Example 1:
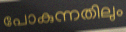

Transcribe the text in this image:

പോകുന്നതിലും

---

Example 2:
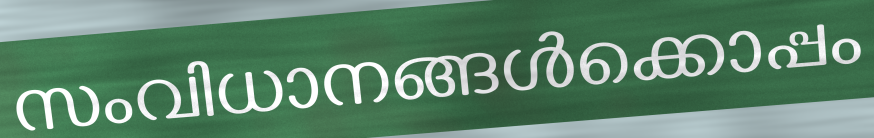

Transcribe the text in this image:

സംവിധാനങ്ങൾക്കൊപ്പം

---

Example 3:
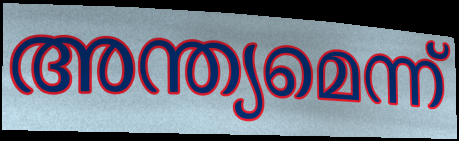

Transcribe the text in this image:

അന്ത്യമെന്ന്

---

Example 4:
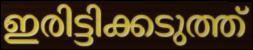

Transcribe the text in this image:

ഇരിട്ടിക്കടുത്ത്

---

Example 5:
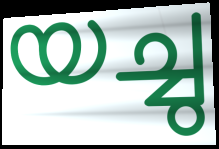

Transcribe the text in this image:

യച്ചു